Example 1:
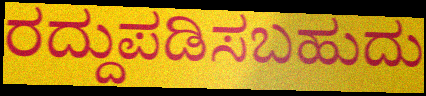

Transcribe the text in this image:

ರದ್ದುಪಡಿಸಬಹುದು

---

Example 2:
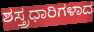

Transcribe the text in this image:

ಶಸ್ತ್ರಧಾರಿಗಳಾದ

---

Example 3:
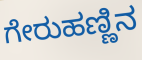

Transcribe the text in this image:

ಗೇರುಹಣ್ಣಿನ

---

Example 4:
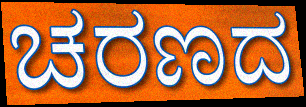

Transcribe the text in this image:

ಚರಣದ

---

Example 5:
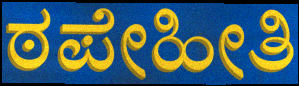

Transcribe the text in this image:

ಠಪೇಹೀತಿ